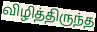
விழித்திருந்த